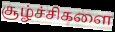
சூழ்ச்சிகளை